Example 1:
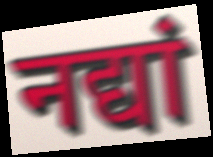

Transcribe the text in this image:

नद्यां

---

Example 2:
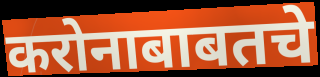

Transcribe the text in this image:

करोनाबाबतचे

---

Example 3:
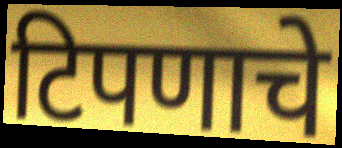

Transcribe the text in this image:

टिपणाचे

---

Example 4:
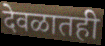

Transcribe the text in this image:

देवळातही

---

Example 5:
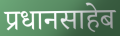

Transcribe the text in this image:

प्रधानसाहेब